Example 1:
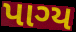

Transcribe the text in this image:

પાગ્ય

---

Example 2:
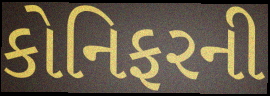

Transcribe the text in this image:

કોનિફરની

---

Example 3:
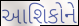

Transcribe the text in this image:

આશિકોને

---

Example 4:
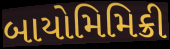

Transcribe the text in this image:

બાયોમિમિક્રી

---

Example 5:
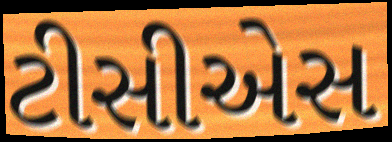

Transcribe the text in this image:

ટીસીએસ